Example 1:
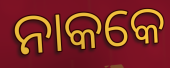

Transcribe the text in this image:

ନାକକେ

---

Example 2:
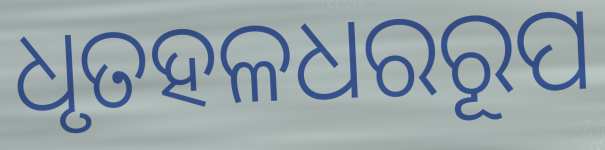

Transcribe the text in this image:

ଧୃତହଳଧରରୂପ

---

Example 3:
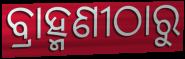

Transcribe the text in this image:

ବ୍ରାହ୍ମଣୀଠାରୁ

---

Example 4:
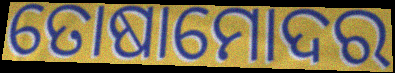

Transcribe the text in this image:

ତୋଷାମୋଦର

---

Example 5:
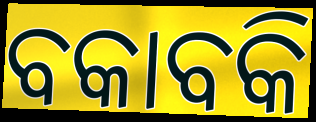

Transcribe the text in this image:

ବକାବକି